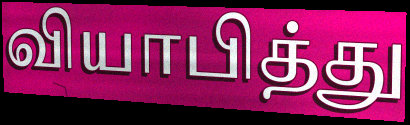
வியாபித்து